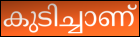
കുടിച്ചാണ്